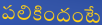
పలికిందంటే